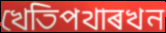
খেতিপথাৰখন